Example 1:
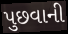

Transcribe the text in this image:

પુછવાની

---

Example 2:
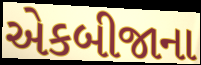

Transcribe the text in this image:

એકબીજાના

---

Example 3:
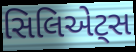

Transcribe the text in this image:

સિલિએટ્સ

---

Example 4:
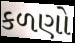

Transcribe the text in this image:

કળણો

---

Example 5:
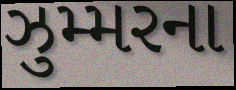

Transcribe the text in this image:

ઝુમ્મરના